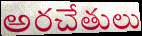
అరచేతులు